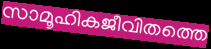
സാമൂഹികജീവിതത്തെ